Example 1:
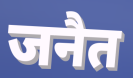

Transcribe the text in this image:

जनैत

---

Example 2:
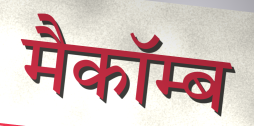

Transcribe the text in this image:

मैकॉम्ब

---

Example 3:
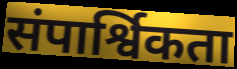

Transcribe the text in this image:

संपार्श्विकता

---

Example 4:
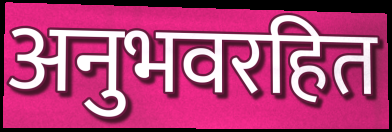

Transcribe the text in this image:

अनुभवरहित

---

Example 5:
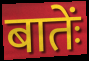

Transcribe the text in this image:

बातेंः